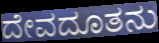
ದೇವದೂತನು